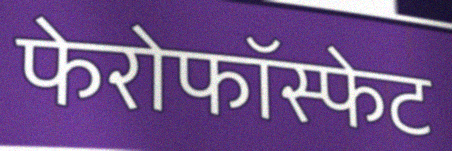
फेरोफॉस्फेट